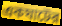
একঘাটের